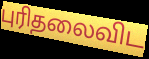
புரிதலைவிட